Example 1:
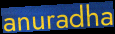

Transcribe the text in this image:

anuradha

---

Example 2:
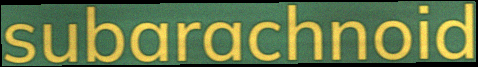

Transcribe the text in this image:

subarachnoid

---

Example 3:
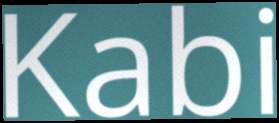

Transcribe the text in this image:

Kabi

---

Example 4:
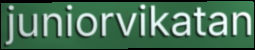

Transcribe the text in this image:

juniorvikatan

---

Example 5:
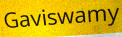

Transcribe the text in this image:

Gaviswamy